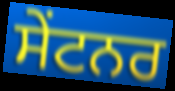
ਸੇਂਟਨਰ